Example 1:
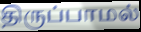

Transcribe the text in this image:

திருப்பாமல்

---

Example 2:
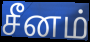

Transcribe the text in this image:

சீனம்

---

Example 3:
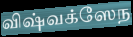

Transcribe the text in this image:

விஷ்வக்ஸேந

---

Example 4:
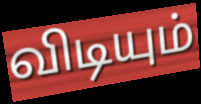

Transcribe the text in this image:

விடியும்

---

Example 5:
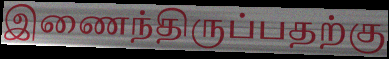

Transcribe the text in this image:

இணைந்திருப்பதற்கு